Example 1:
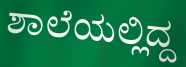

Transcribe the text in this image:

ಶಾಲೆಯಲ್ಲಿದ್ದ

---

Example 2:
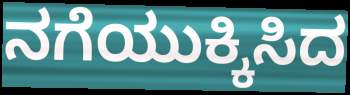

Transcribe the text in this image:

ನಗೆಯುಕ್ಕಿಸಿದ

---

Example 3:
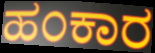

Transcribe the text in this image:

ಹಂಕಾರ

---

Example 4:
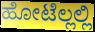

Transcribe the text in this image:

ಹೋಟೆಲ್ಲಲ್ಲಿ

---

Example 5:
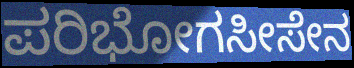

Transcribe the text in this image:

ಪರಿಭೋಗಸೀಸೇನ